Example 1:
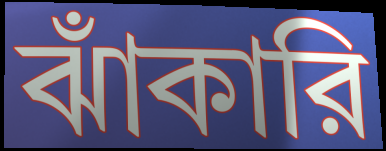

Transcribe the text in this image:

ঝাঁকারি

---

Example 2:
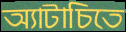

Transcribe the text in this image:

অ্যাটাচিতে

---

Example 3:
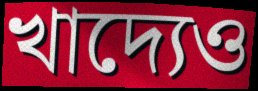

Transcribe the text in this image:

খাদ্যেও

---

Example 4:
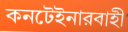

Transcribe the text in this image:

কনটেইনারবাহী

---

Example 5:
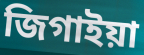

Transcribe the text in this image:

জিগাইয়া